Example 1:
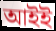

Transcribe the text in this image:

আইই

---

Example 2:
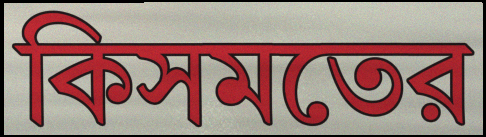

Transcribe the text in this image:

কিসমতের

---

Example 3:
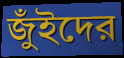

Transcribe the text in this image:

জুঁইদের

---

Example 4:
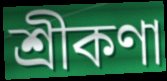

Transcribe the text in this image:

শ্রীকণা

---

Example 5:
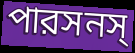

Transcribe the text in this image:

পারসনস্